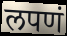
लपणं